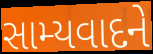
સામ્યવાદને